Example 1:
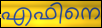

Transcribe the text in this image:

എഫിനെ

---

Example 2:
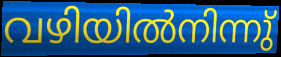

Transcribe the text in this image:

വഴിയിൽനിന്നു്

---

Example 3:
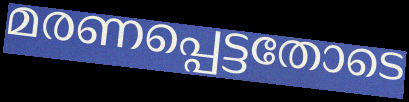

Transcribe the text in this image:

മരണപ്പെട്ടതോടെ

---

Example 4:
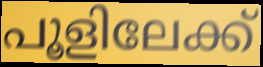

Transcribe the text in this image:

പൂളിലേക്ക്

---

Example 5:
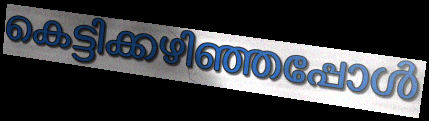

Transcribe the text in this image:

കെട്ടിക്കഴിഞ്ഞപ്പോൾ